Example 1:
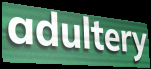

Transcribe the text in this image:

adultery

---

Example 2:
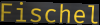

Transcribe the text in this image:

Fischel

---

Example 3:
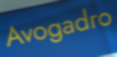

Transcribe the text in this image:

Avogadro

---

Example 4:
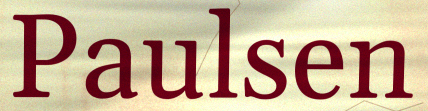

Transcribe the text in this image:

Paulsen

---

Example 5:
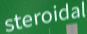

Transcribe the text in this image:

steroidal